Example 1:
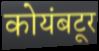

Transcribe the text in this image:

कोयंबटूर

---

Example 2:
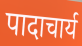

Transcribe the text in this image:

पादाचार्य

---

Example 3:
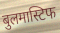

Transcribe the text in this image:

बुलमास्टिफ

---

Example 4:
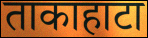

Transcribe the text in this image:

ताकाहाटा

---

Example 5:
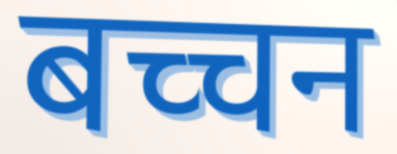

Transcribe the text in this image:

बच्‍चन